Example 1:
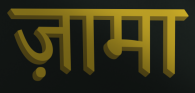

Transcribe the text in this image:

ज़ामा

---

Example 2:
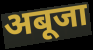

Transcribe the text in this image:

अबूजा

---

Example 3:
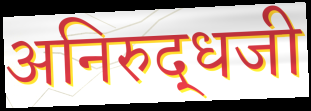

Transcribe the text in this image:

अनिरुद्धजी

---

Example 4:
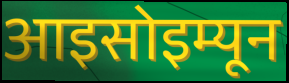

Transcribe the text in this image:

आइसोइम्यून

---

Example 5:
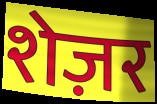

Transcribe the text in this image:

शेज़र